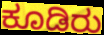
ಕೂಡಿರು